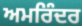
ਅਮਰਿੰਦਰ